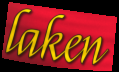
laken